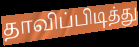
தாவிப்பிடித்து